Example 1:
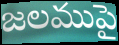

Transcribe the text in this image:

జలముపై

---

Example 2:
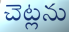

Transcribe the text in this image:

చెట్లను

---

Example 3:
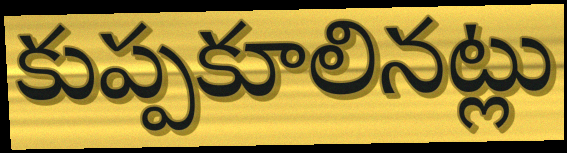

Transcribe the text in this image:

కుప్పకూలినట్లు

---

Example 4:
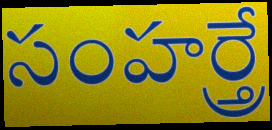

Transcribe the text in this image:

సంహర్త్రే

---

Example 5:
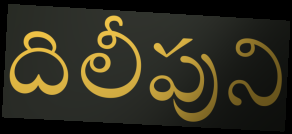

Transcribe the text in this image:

దిలీపుని